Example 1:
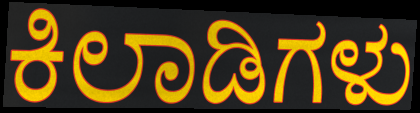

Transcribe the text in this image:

ಕಿಲಾಡಿಗಳು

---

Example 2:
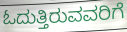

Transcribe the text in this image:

ಓದುತ್ತಿರುವವರಿಗೆ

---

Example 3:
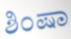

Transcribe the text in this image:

ಶಿಂಷಾ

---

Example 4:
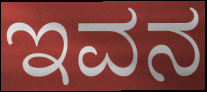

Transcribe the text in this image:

ಇವನ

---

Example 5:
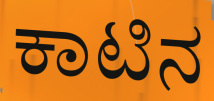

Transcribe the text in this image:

ಕಾಟಿನ